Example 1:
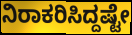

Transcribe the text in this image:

ನಿರಾಕರಿಸಿದ್ದಷ್ಟೇ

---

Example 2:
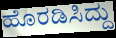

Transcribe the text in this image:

ಹೊರಡಿಸಿದ್ದು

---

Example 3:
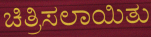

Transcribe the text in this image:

ಚಿತ್ರಿಸಲಾಯಿತು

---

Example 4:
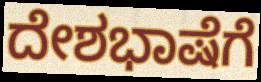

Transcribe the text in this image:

ದೇಶಭಾಷೆಗೆ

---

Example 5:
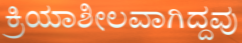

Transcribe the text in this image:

ಕ್ರಿಯಾಶೀಲವಾಗಿದ್ದವು